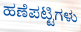
ಹಣೆಪಟ್ಟಿಗಳು